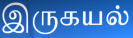
இருகயல்